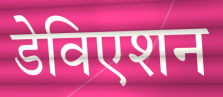
डेविएशन